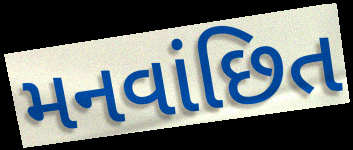
મનવાંછિત